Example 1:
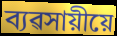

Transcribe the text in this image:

ব্যৱসায়ীয়ে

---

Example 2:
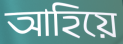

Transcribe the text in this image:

আহিয়ে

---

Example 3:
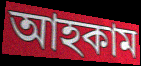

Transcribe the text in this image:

আহকাম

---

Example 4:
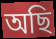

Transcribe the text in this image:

অছি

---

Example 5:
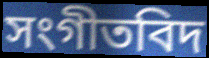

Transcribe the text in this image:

সংগীতবিদ